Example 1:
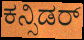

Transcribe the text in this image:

ಕನ್ಸಿಡರ್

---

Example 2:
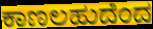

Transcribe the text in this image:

ಕಾಣಲಹುದೆಂದ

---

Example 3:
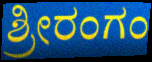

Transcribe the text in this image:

ಶ್ರೀರಂಗಂ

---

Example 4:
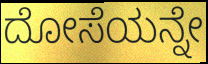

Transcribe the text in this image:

ದೋಸೆಯನ್ನೇ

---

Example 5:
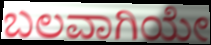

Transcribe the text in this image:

ಬಲವಾಗಿಯೇ